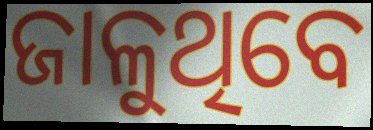
ଜାଳୁଥିବେ